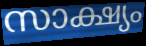
സാക്ഷ്യം